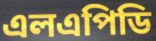
এলএপিডি